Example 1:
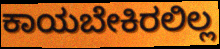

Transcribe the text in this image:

ಕಾಯಬೇಕಿರಲಿಲ್ಲ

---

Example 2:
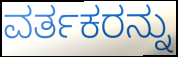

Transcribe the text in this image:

ವರ್ತಕರನ್ನು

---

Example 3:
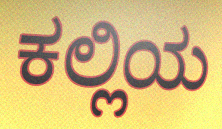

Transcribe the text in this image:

ಕಲ್ಲಿಯ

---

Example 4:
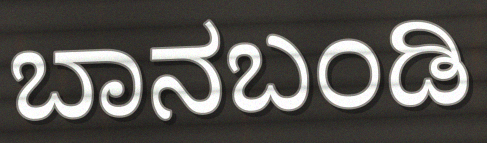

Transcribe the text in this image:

ಬಾನಬಂಡಿ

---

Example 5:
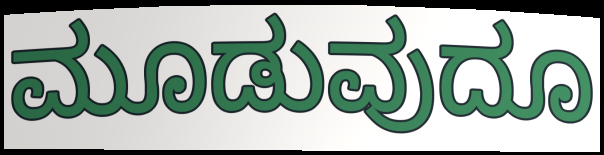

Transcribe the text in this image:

ಮೂಡುವುದೂ